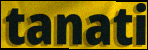
tanati